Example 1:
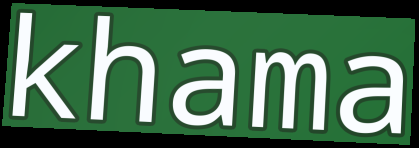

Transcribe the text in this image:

khama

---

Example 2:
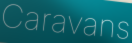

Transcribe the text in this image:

Caravans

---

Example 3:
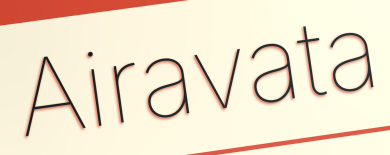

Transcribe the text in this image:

Airavata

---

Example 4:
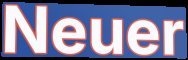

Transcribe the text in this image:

Neuer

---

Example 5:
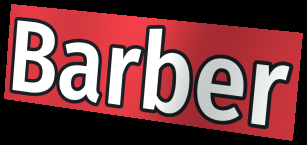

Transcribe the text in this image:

Barber